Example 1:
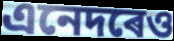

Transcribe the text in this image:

এনেদৰেও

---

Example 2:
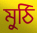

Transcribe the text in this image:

মুঠি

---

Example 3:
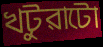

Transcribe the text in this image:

খটুৱাটো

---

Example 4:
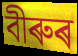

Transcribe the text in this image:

বীৰুৰ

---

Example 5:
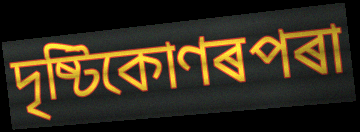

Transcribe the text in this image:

দৃষ্টিকোণৰপৰা